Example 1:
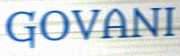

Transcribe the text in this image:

GOVANI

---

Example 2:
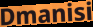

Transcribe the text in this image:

Dmanisi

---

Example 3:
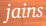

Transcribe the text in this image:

jains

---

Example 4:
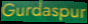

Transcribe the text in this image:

Gurdaspur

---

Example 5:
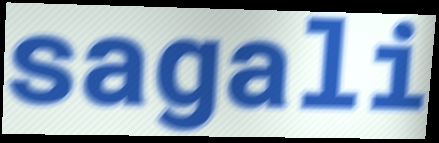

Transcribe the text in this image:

sagali